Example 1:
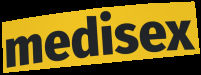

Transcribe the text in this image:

medisex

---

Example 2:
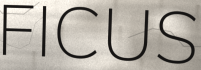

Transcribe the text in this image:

FICUS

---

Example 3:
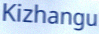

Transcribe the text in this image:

Kizhangu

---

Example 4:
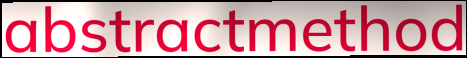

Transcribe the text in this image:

abstractmethod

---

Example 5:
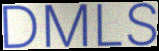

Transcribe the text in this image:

DMLS